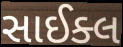
સાઈક્લ